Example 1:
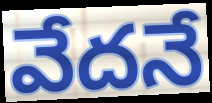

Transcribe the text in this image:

వేదనే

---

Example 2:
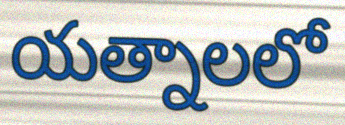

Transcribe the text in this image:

యత్నాలలో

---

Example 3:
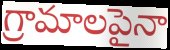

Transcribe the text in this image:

గ్రామాలపైనా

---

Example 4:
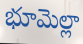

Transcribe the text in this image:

భూమెల్లా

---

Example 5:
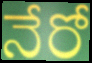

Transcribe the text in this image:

నేరో